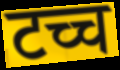
टच्च